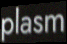
plasm